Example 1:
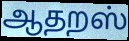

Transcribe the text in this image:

ஆதறஸ்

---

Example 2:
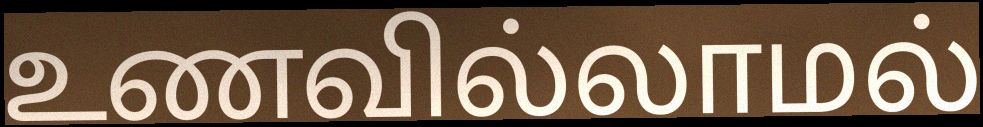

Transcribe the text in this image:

உணவில்லாமல்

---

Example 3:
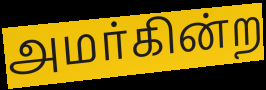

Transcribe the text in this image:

அமர்கின்ற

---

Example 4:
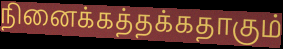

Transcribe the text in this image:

நினைக்கத்தக்கதாகும்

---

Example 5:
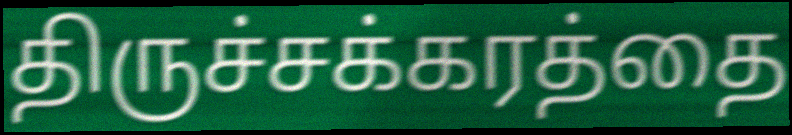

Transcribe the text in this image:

திருச்சக்கரத்தை